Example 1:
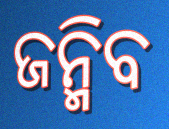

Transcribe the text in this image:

ଜନ୍ମିବ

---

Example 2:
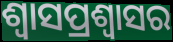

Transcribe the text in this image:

ଶ୍ଵାସପ୍ରଶ୍ଵାସର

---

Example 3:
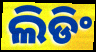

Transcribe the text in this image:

ଲିଡିଂ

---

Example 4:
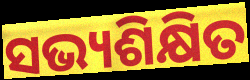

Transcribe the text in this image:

ସଭ୍ୟଶିକ୍ଷିତ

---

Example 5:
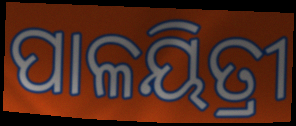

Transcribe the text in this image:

ପାଳୟିତ୍ରୀ